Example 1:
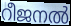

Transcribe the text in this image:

റീജനൽ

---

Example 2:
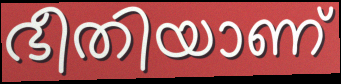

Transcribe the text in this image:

ഭീതിയാണ്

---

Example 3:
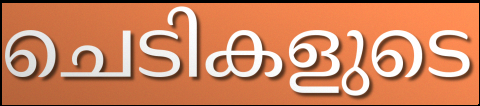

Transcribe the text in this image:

ചെടികളുടെ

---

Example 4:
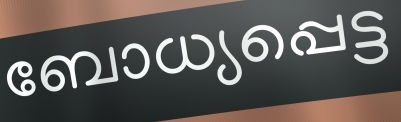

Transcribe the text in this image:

ബോധ്യപ്പെട്ട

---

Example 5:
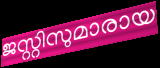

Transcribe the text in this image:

ജസ്റ്റിസുമാരായ